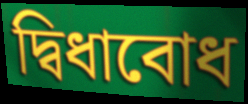
দ্বিধাবোধ